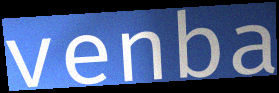
venba